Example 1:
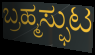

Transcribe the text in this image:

ಬ್ರಹ್ಮಸ್ಫುಟ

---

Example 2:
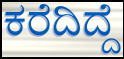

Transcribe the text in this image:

ಕರೆದಿದ್ದೆ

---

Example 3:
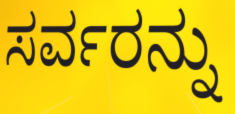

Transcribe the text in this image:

ಸರ್ವರನ್ನು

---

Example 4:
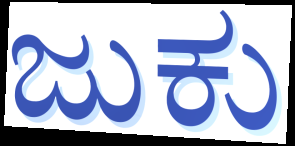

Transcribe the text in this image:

ಜುಕು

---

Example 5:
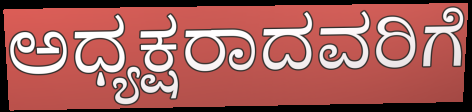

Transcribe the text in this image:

ಅಧ್ಯಕ್ಷರಾದವರಿಗೆ